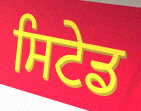
ਸਿਟੇਡ